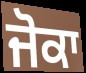
ਜੋਕਾ